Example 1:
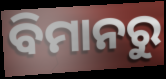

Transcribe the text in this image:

ବିମାନରୁ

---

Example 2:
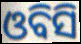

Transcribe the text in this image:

ଓବିସି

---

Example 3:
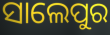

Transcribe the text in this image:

ସାଲେପୁର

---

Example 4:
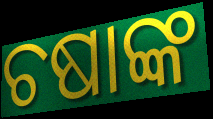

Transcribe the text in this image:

ଚଷାଙ୍କ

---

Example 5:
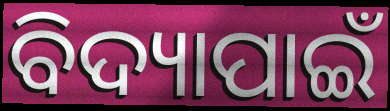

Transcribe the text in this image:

ବିଦ୍ୟାପାଇଁ